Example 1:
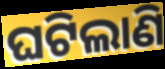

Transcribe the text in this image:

ଘଟିଲାଣି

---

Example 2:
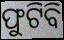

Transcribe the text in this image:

ଫୁଟିବି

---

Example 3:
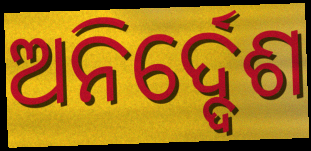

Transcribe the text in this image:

ଅନିର୍ଦ୍ଦେଶ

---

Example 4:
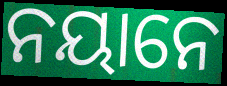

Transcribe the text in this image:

ନୟାନେ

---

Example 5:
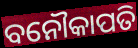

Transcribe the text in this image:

ବନୌକାପତି